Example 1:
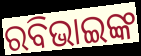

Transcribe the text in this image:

ରବିଭାଇଙ୍କ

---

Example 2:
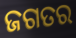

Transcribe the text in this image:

ଜଗତର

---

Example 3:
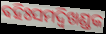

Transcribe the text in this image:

ବହିଃସମଦ୍ୱିଖଣ୍ଡକ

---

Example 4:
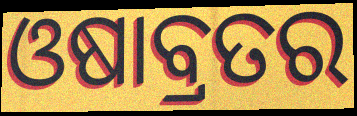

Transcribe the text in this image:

ଓଷାବ୍ରତର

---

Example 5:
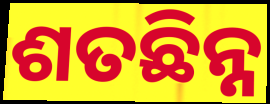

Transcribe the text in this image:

ଶତଛିନ୍ନ